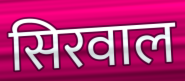
सिरवाल